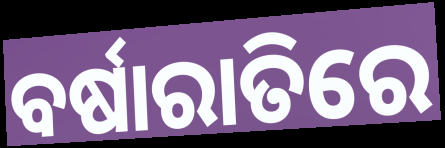
ବର୍ଷାରାତିରେ